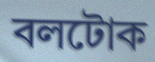
বলটোক